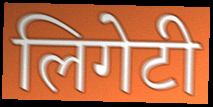
लिगेटी